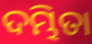
ଦମ୍ଭିତା